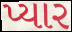
પ્યાર